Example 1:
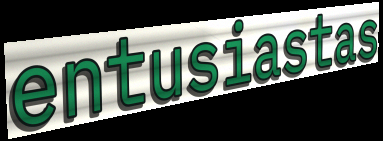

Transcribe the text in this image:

entusiastas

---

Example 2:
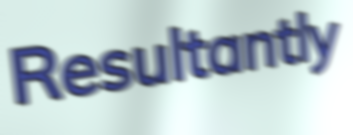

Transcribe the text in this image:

Resultantly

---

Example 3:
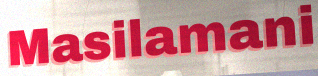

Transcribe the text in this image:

Masilamani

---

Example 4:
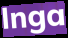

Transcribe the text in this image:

Inga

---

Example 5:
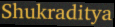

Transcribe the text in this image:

Shukraditya